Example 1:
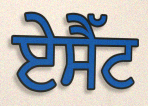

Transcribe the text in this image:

ਏਸੈੱਟ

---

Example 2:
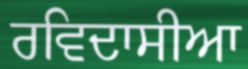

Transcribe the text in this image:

ਰਵਿਦਾਸੀਆ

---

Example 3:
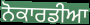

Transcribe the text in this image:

ਨੋਕਾਰਡੀਆ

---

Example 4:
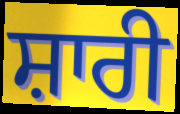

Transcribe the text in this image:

ਸ਼ਾਰੀ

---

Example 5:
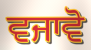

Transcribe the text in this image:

ਵਜਾਵੋ